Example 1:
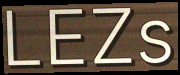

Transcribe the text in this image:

LEZs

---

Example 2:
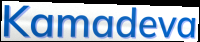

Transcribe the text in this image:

Kamadeva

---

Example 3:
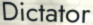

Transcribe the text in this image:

Dictator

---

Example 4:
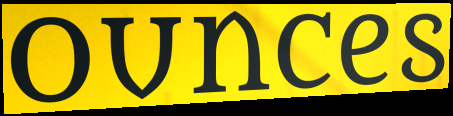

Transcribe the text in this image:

ounces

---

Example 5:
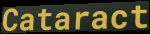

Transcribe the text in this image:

Cataract